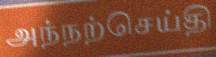
அந்நற்செய்தி